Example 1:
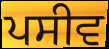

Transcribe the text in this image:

ਪਸੀਵ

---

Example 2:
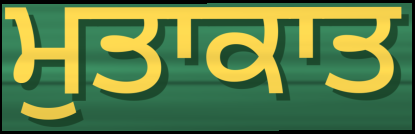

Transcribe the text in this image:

ਮੁਤਾਕਾਤ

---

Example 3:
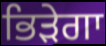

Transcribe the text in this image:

ਭਿੜੇਗਾ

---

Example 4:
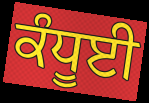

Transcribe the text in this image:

ਕੰਧੂਈ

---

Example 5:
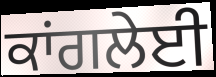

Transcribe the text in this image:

ਕਾਂਗਲੇਈ